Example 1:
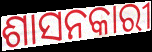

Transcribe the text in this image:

ଶାସନକାରୀ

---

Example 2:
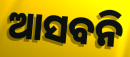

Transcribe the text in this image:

ଆସବନି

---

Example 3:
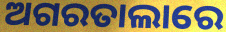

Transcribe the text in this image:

ଅଗରତାଲାରେ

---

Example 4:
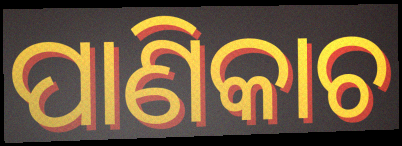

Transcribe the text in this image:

ପାଣିକାଚ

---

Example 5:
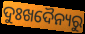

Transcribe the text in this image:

ଦୁଃଖଦୈନ୍ୟରୁ